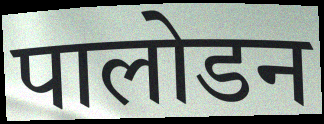
पालोडन